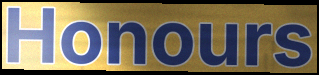
Honours